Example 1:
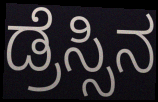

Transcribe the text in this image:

ಡ್ರೆಸ್ಸಿನ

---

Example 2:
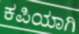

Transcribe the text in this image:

ಕಪಿಯಾಗಿ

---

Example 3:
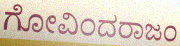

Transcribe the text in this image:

ಗೋವಿಂದರಾಜಂ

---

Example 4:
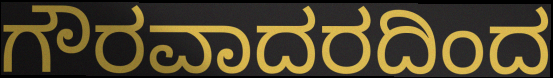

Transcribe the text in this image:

ಗೌರವಾದರದಿಂದ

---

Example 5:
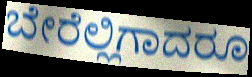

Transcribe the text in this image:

ಬೇರೆಲ್ಲಿಗಾದರೂ